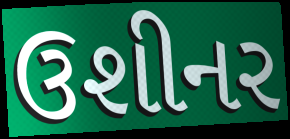
ઉશીનર